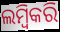
ଲମ୍ବିକରି